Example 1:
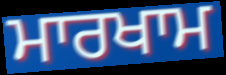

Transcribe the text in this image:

ਮਾਰਖਾਮ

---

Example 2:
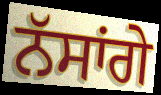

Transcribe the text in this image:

ਨੱਸਾਂਗੇ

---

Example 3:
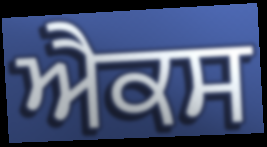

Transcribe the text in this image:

ਐਕਸ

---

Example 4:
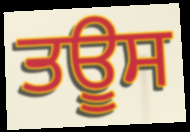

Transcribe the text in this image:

ਤਊਸ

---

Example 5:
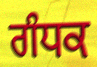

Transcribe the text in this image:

ਗੰਧਕ